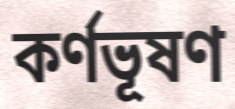
কর্ণভূষণ